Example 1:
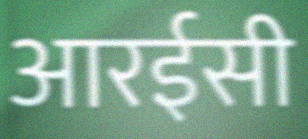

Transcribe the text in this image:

आरईसी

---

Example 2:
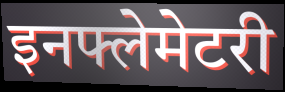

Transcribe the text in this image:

इनफ्लेमेटरी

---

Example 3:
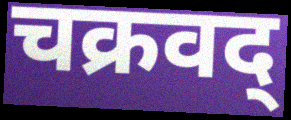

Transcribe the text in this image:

चक्रवद्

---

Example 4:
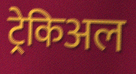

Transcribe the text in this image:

ट्रेकिअल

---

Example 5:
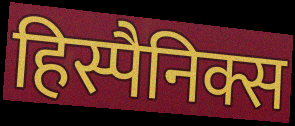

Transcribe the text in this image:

हिस्पैनिक्स